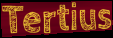
Tertius